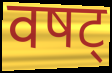
वषट्